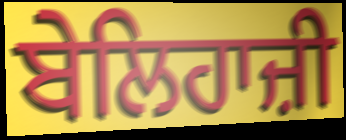
ਬੇਲਿਹਾਜ਼ੀ